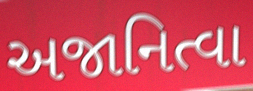
અજાનિત્વા